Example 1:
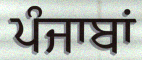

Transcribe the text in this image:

ਪੰਜਾਬਾਂ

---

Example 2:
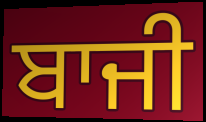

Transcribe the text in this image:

ਬਾਜੀ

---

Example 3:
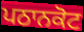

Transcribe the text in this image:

ਪਠਾਨਕੋਟ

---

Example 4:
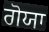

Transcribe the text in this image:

ਗੋਯਾ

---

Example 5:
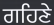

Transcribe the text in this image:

ਗਹਿਣੇ